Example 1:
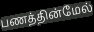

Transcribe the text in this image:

பணத்தின்மேல்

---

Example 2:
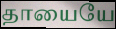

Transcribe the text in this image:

தாயையே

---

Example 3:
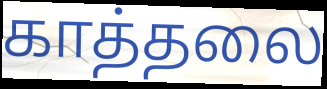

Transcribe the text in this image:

காத்தலை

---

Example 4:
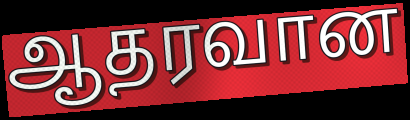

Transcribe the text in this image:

ஆதரவான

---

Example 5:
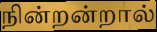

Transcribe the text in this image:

நின்றன்றால்